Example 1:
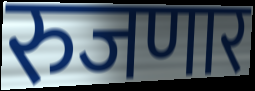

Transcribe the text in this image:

रुजणार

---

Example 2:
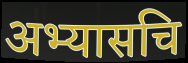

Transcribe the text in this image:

अभ्यासचि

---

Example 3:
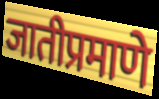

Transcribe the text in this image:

जातीप्रमाणे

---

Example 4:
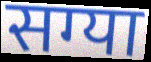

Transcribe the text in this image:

सग्या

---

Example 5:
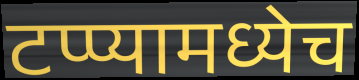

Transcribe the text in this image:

टप्प्यामध्येच